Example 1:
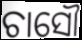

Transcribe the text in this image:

ଚାସୌ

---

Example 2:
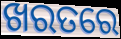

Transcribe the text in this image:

ଖରତରେ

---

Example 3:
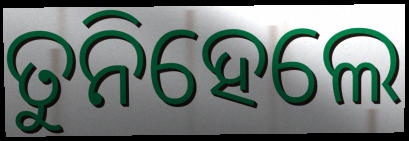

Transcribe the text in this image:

ତୁନିହେଲେ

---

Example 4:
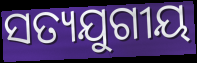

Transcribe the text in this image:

ସତ୍ୟଯୁଗୀୟ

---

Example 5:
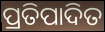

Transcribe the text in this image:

ପ୍ରତିପାଦିତ